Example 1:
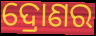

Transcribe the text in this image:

ଦ୍ରୋଣର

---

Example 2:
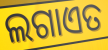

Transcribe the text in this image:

ଲଗାଏତ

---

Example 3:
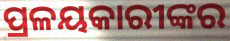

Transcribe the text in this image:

ପ୍ରଳୟକାରୀଙ୍କର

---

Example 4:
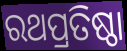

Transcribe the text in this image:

ରଥପ୍ରତିଷ୍ଠା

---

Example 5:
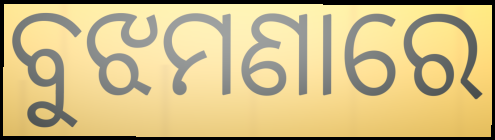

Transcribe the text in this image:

ବୁଝମଣାରେ